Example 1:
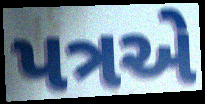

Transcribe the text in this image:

પત્રએ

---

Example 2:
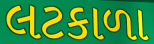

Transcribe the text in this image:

લટકાળા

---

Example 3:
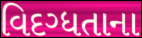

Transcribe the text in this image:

વિદગ્ધતાના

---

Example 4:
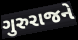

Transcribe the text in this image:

ગુરુરાજને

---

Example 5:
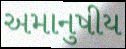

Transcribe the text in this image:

અમાનુષીય